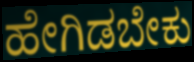
ಹೇಗಿಡಬೇಕು